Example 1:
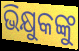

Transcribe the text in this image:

ଭିକ୍ଷୁକଙ୍କୁ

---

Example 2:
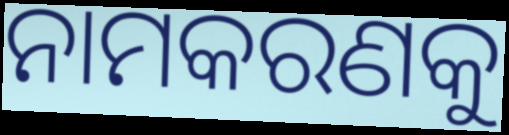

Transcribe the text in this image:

ନାମକରଣକୁ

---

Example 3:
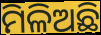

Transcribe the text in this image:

ମିଳିଅଛି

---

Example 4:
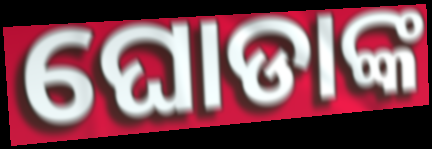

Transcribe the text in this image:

ଘୋଡାଙ୍କ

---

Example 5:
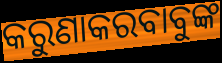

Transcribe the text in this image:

କରୁଣାକରବାବୁଙ୍କ